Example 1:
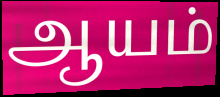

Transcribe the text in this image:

ஆயம்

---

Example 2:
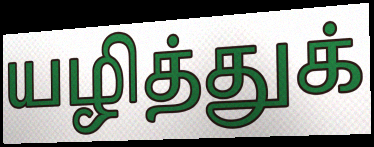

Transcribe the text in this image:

யழித்துக்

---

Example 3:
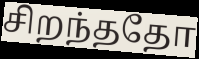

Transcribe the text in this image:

சிறந்ததோ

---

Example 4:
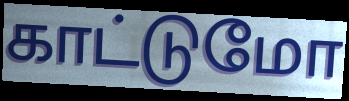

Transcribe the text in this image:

காட்டுமோ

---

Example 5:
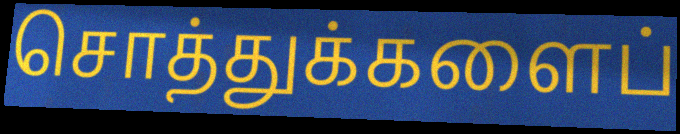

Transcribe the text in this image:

சொத்துக்களைப்